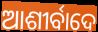
ଆଶୀର୍ବାଦେ